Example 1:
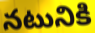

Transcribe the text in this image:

నటునికి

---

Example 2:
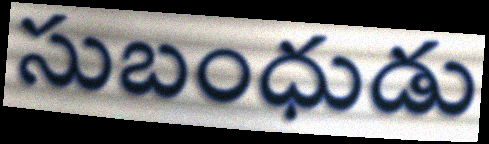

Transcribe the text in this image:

సుబంధుడు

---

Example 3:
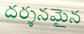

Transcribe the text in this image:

దర్శనమైన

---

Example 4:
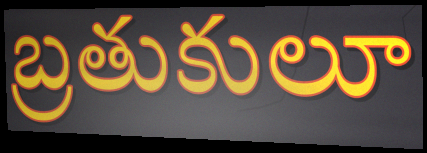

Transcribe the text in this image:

బ్రతుకులూ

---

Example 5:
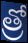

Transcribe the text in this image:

త్రో